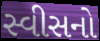
સ્વીસનો